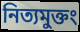
নিত্যমুক্তং